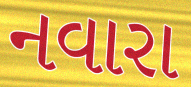
નવારા